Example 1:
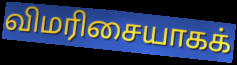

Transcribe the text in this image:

விமரிசையாகக்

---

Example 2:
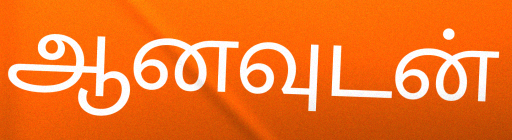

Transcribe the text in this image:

ஆனவுடன்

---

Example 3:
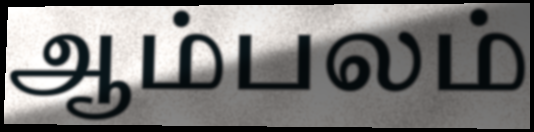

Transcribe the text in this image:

ஆம்பலம்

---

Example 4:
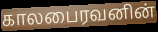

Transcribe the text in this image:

காலபைரவனின்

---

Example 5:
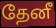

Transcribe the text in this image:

தேனீ